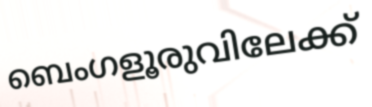
ബെംഗളൂരുവിലേക്ക്